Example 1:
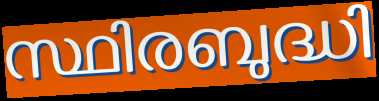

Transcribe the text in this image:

സ്ഥിരബുദ്ധി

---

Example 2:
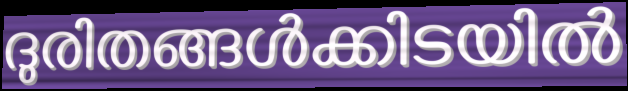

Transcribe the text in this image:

ദുരിതങ്ങൾക്കിടയിൽ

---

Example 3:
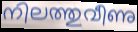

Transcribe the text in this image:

നിലത്തുവീണു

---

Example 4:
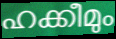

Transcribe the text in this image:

ഹക്കീമും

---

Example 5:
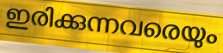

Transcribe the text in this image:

ഇരിക്കുന്നവരെയും